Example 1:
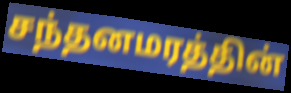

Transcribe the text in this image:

சந்தனமரத்தின்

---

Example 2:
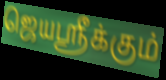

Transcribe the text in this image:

ஜெயஸ்ரீக்கும்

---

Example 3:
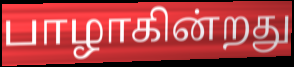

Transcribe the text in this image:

பாழாகின்றது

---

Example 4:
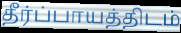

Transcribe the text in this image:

தீர்ப்பாயத்திடம்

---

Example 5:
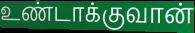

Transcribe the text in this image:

உண்டாக்குவான்